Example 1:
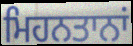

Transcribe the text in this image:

ਮਿਹਨਤਾਨਾਂ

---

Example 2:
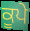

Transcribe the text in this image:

ਕੂਪੇ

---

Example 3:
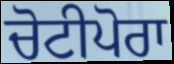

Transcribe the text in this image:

ਚੋਟੀਪੋਰਾ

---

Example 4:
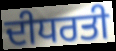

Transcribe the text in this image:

ਦੀਧਰਤੀ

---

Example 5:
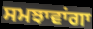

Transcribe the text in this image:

ਸਮਝਾਵਾਂਗਾ